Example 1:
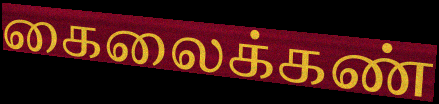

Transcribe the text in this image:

கைலைக்கண்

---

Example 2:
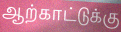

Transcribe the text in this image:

ஆற்காட்டுக்கு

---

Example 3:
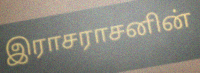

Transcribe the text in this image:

இராசராசனின்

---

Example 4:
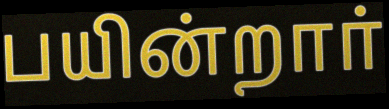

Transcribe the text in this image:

பயின்றார்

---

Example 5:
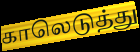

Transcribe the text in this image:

காலெடுத்து